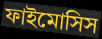
ফাইমোসিস